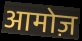
आमोज़